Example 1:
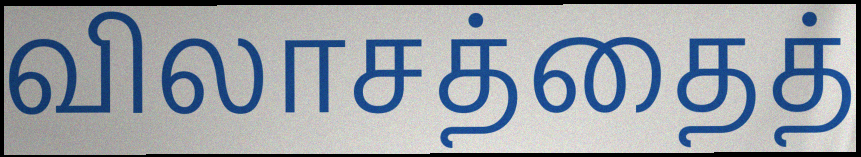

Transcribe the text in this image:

விலாசத்தைத்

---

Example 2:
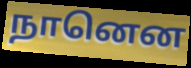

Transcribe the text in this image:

நானென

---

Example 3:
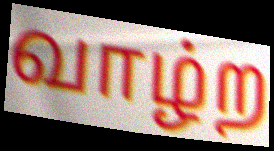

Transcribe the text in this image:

வாழ்ற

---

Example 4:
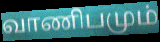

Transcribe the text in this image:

வாணிபமும்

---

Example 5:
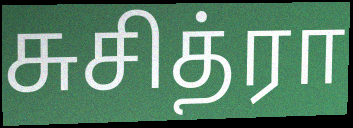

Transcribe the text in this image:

சுசித்ரா